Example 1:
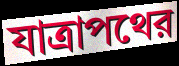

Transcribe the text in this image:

যাত্রাপথের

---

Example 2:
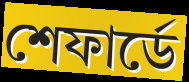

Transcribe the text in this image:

শেফার্ডে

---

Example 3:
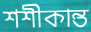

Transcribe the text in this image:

শশীকান্ত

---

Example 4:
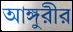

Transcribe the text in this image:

আঙ্গুরীর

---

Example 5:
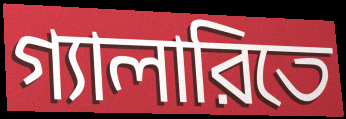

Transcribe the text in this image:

গ্যালারিতে